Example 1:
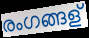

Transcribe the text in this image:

രംഗങ്ങള്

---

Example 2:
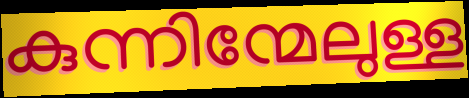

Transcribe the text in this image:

കുന്നിന്മേലുള്ള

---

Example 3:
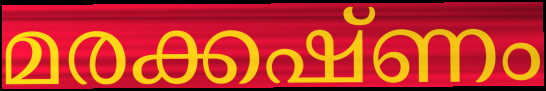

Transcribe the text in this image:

മരക്കഷ്ണം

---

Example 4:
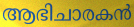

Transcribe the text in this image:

ആഭിചാരകൻ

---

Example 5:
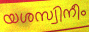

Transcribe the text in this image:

യശസ്വിനീം